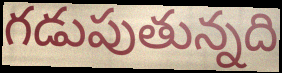
గడుపుతున్నది